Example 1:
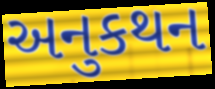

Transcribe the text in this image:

અનુકથન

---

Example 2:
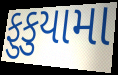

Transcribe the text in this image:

ફુકુયામા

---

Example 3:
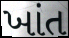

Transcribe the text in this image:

ખાંત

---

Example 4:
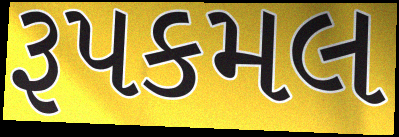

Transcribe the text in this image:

રૂપકમલ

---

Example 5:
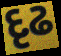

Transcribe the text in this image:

દૃઢ